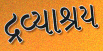
દ્રવ્યાશ્રય